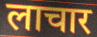
लाचार